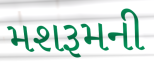
મશરૂમની